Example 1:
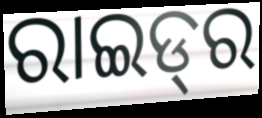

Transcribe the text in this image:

ରାଇଡ୍‌ର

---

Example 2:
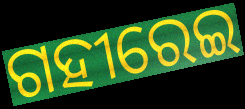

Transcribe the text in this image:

ଗହୀରେଇ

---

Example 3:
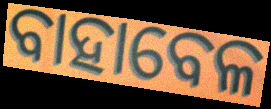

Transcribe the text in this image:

ବାହାବେଳ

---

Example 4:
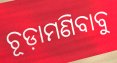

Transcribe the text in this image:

ଚୂଡ଼ାମଣିବାବୁ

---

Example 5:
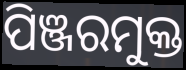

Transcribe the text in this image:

ପିଞ୍ଜରମୁକ୍ତ